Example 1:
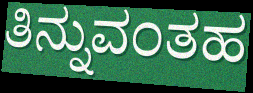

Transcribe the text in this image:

ತಿನ್ನುವಂತಹ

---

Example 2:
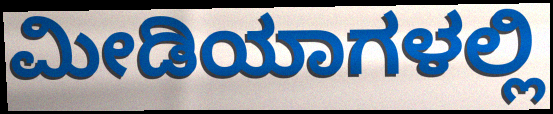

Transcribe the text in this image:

ಮೀಡಿಯಾಗಳಲ್ಲಿ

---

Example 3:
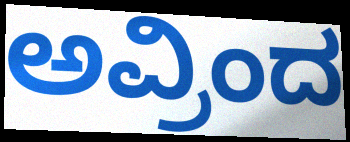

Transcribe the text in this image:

ಅವ್ರಿಂದ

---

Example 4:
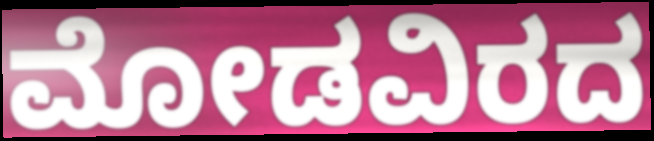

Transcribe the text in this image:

ಮೋಡವಿರದ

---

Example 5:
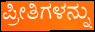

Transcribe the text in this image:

ಪ್ರೀತಿಗಳನ್ನು